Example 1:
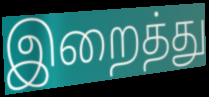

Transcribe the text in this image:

இறைத்து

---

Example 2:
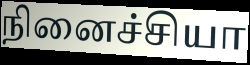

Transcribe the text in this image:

நினைச்சியா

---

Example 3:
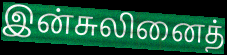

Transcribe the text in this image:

இன்சுலினைத்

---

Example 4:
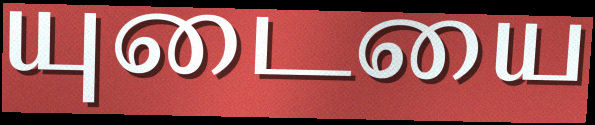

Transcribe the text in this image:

யுடையை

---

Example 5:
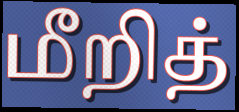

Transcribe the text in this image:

மீறித்